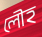
লৌহ